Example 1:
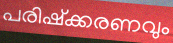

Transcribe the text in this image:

പരിഷ്ക്കരണവും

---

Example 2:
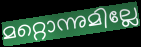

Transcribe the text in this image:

മറ്റൊന്നുമില്ലേ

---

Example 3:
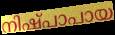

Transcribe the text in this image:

നിഷ്പാപായ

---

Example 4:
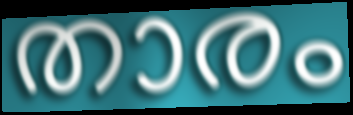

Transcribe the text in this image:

താരം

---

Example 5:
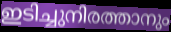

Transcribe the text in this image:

ഇടിച്ചുനിരത്താനും